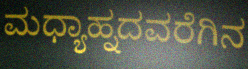
ಮಧ್ಯಾಹ್ನದವರೆಗಿನ